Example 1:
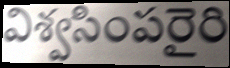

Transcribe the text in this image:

విశ్వసింపరైరి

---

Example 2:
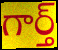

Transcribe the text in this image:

గార్త్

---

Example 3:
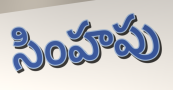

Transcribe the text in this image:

సింహపు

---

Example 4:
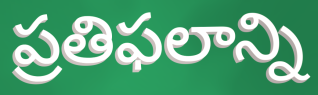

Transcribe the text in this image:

ప్రతిఫలాన్ని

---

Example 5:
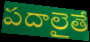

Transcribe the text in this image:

పదాలైతే